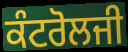
ਕੰਟਰੋਲਜੀ